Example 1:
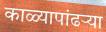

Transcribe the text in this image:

काळ्यापांढर्‍या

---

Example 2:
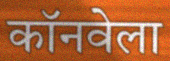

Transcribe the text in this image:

कॉनवेला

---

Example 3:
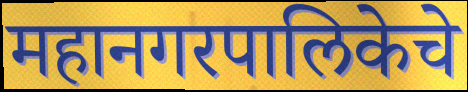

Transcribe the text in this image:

महानगरपालिकेचे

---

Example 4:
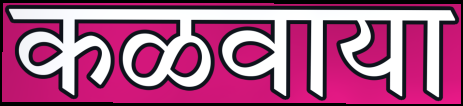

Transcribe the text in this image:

कळवाया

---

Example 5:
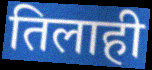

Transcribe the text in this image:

तिलाही